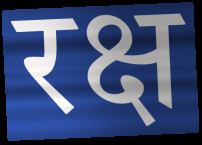
रक्ष